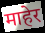
माहेर